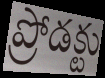
ప్రోడక్టు